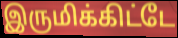
இருமிக்கிட்டே